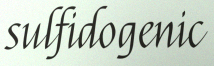
sulfidogenic